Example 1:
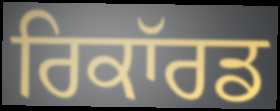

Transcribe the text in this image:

ਰਿਕਾੱਰਡ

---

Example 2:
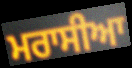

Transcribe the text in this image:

ਮਰਾਸੀਆ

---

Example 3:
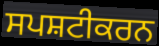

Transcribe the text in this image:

ਸਪਸ਼ਟੀਕਰਨ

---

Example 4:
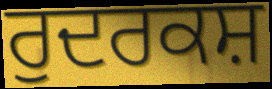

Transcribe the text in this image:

ਰੁਦਰਕਸ਼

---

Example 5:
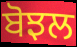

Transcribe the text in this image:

ਬੋਝਲ